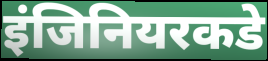
इंजिनियरकडे